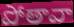
పోతావా